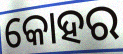
କୋହର